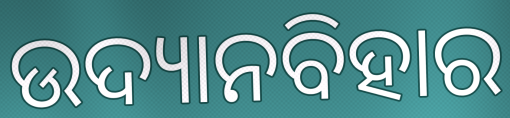
ଉଦ୍ୟାନବିହାର